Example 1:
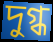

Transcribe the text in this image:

দুগ্ধ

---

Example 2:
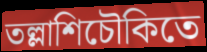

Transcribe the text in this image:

তল্লাশিচৌকিতে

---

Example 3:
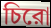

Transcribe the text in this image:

চিরো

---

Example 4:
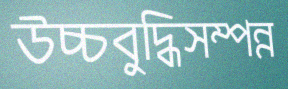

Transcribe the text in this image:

উচ্চবুদ্ধিসম্পন্ন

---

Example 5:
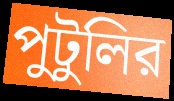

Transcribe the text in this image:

পুটুলির